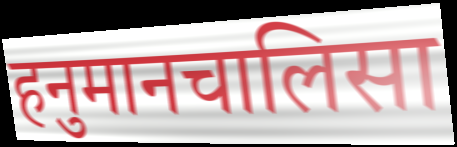
हनुमानचालिसा